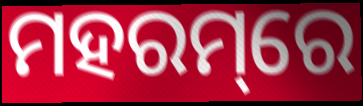
ମହରମ୍‌ରେ